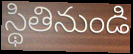
స్థితినుండి